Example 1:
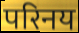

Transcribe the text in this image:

परिनय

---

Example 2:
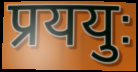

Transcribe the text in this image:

प्रययुः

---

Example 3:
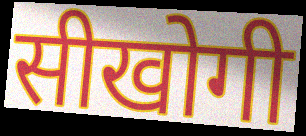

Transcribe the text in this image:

सीखोगी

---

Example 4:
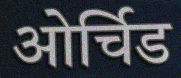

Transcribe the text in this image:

ओर्चिड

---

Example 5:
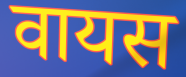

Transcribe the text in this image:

वायस